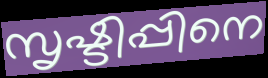
സൃഷ്ടിപ്പിനെ